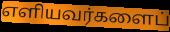
எளியவர்களைப்